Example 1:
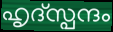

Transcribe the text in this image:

ഹൃദ്സ്പന്ദം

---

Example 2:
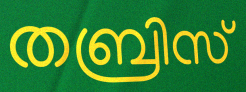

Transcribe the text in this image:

തബ്രിസ്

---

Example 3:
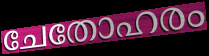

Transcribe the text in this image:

ചേതോഹരം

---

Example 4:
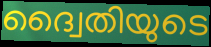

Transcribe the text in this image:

ദ്വൈതിയുടെ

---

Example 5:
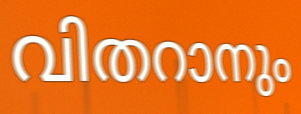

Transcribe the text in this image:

വിതറാനും